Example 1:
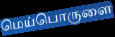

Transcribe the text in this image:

மெய்பொருளை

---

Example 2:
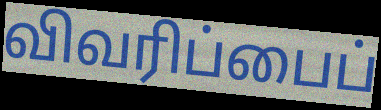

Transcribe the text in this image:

விவரிப்பைப்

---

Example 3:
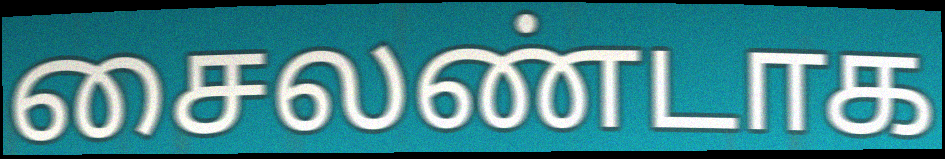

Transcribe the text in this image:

சைலண்டாக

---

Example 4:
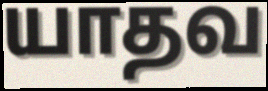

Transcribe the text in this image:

யாதவ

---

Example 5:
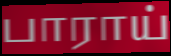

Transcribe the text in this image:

பாராய்